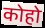
कोहो